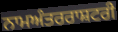
ਨਾਮਅੰਤਰਰਾਸ਼ਟਰੀ